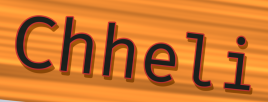
Chheli